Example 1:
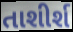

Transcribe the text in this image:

તાશીર્શ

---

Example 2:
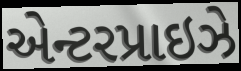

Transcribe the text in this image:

એન્ટરપ્રાઇઝે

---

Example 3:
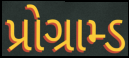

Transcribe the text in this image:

પ્રોગ્રામ્ડ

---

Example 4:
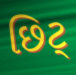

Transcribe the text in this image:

છિટ્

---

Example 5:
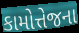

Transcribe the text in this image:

કામોત્તેજના